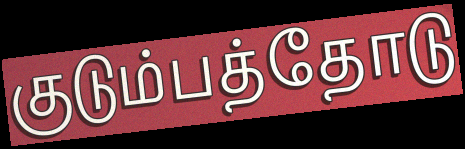
குடும்பத்தோடு